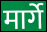
मार्गे